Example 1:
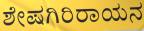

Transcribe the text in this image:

ಶೇಷಗಿರಿರಾಯನ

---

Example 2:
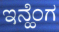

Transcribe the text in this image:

ಇನ್ಹೆಂಗ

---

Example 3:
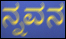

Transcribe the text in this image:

ನ್ನವನ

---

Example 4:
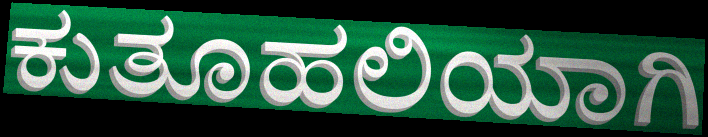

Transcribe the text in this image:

ಕುತೂಹಲಿಯಾಗಿ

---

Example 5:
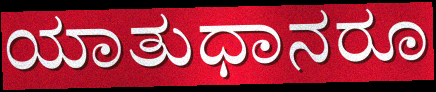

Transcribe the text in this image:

ಯಾತುಧಾನರೂ